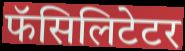
फॅसिलिटेटर